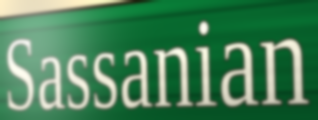
Sassanian